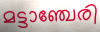
മട്ടാഞ്ചേരി